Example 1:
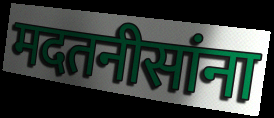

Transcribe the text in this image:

मदतनीसांना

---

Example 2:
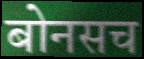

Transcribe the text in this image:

बोनसच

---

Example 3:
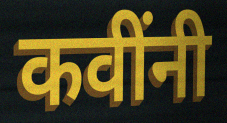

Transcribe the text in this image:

कवींनी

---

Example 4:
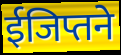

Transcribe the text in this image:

ईजिप्तने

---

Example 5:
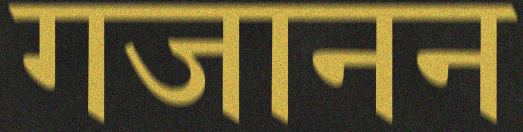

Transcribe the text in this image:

गजानन